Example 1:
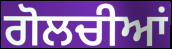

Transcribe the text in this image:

ਗੋਲਚੀਆਂ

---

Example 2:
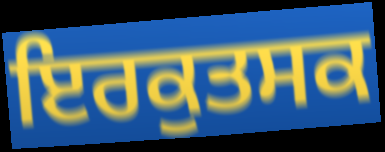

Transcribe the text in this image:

ਇਰਕੁਤਸਕ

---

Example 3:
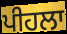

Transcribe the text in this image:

ਪੀਹਲਾ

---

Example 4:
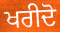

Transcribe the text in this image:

ਖਰੀਦੋ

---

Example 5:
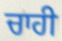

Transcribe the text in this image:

ਚਾਹੀ